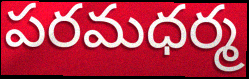
పరమధర్మ